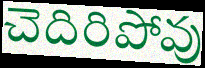
చెదిరిపోవు